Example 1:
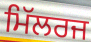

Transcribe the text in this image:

ਮਿੱਲਰਜ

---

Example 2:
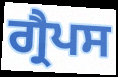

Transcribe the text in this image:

ਗ੍ਰੈਪਸ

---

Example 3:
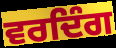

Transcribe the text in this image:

ਵਰਦਿੰਗ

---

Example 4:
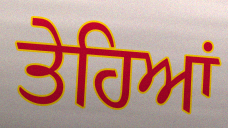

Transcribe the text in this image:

ਤੇਹਿਆਂ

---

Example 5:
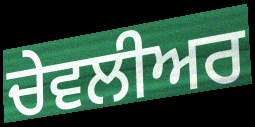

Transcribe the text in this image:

ਚੇਵਲੀਅਰ